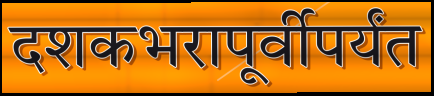
दशकभरापूर्वीपर्यंत